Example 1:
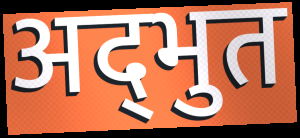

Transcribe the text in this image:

अद्‌भुत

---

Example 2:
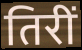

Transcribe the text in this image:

तिरीं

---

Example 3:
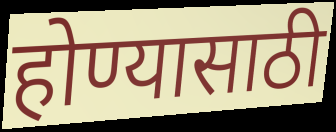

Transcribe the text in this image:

होण्यासाठी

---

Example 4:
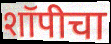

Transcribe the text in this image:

शॉपीचा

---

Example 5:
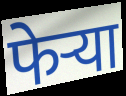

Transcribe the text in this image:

फेर्‍या